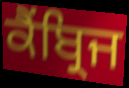
ਕੈਂਬ੍ਰਿਜ